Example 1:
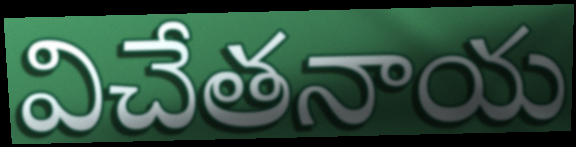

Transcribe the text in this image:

విచేతనాయ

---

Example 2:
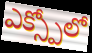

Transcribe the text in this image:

ఎక్స్పోలో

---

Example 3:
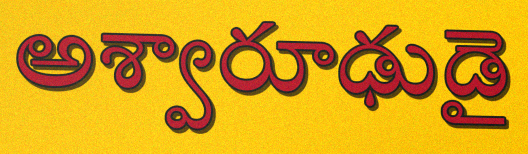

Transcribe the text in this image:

అశ్వారూఢుడై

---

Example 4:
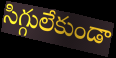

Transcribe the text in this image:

సిగ్గులేకుండా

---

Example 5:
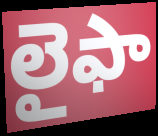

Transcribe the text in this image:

లైఫా